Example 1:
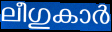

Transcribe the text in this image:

ലീഗുകാർ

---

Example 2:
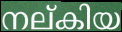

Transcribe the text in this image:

നല്കിയ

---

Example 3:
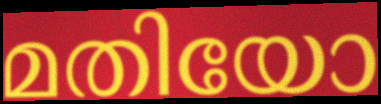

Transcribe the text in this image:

മതിയോ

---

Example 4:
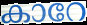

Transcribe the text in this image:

കാറേ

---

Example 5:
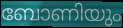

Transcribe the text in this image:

ബോണിയും